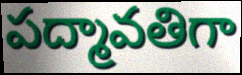
పద్మావతిగా